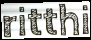
ritthi